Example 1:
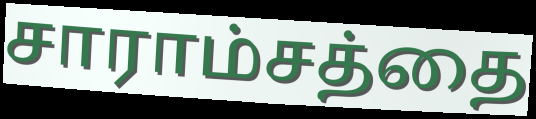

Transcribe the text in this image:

சாராம்சத்தை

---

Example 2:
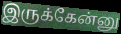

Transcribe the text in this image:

இருக்கேன்னு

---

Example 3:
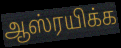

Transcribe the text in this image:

ஆஸ்ரயிக்க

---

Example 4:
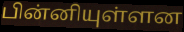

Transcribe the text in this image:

பின்னியுள்ளன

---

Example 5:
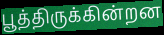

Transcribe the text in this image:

பூத்திருக்கின்றன